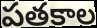
పతకాల